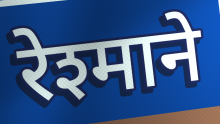
रेश्माने